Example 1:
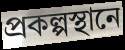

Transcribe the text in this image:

প্রকল্পস্থানে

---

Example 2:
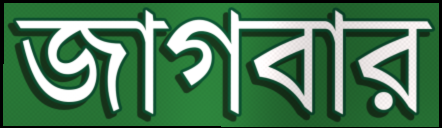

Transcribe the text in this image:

জাগবার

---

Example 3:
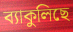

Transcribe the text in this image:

ব্যাকুলিছে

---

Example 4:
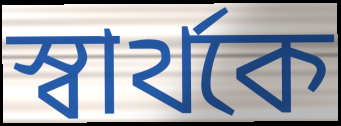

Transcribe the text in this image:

স্বার্থকে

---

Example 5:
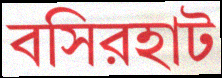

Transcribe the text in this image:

বসিরহাট